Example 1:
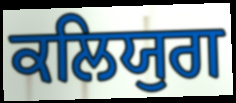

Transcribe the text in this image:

ਕਲਿਯੁਗ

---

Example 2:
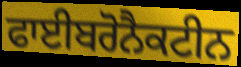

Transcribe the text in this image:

ਫਾਈਬਰੋਨੈਕਟੀਨ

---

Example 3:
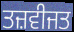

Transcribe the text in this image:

ਤਜ਼ਵੀਜਤ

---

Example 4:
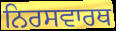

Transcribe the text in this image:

ਨਿਰਸਵਾਰਥ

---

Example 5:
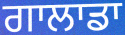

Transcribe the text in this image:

ਗਾਲਾਡਾ